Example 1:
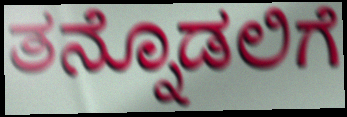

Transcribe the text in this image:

ತನ್ನೊಡಲಿಗೆ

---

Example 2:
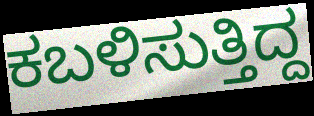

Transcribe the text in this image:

ಕಬಳಿಸುತ್ತಿದ್ದ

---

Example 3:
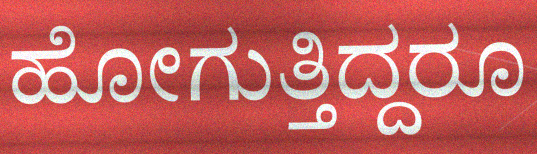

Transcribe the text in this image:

ಹೋಗುತ್ತಿದ್ದರೂ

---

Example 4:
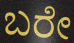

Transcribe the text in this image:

ಬರೇ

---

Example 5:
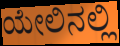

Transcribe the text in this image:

ಯೇಲಿನಲ್ಲಿ